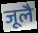
जूलै